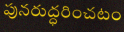
పునరుద్ధరించటం